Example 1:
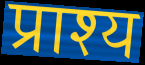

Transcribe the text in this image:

प्राश्य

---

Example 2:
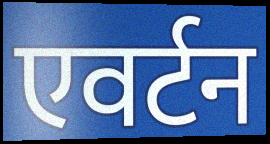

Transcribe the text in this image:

एवर्टन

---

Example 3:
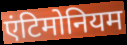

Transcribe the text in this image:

एंटिमोनियम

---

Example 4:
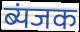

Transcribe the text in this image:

ब्यंजक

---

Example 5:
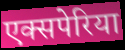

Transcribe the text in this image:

एक्सपेरिया